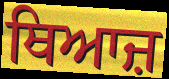
ਥਿਆਜ਼